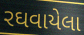
રઘવાયેલા